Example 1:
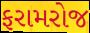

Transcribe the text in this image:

ફરામરોજ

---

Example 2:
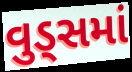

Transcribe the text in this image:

વુડ્સમાં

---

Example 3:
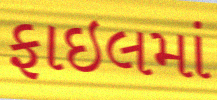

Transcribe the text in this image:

ફાઇલમાં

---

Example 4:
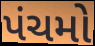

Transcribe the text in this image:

પંચમો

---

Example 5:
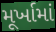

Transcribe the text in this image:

મૂર્ખામાં